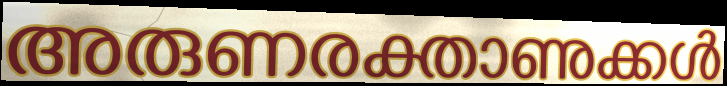
അരുണരക്താണുക്കൾ